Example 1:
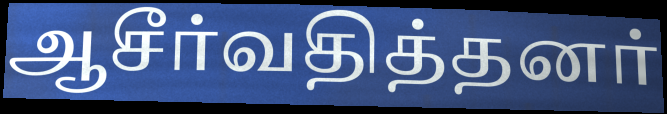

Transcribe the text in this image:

ஆசீர்வதித்தனர்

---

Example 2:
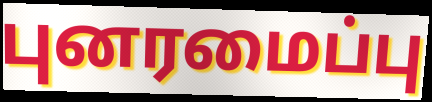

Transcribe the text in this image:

புனரமைப்பு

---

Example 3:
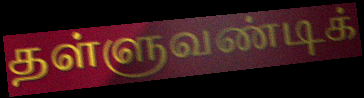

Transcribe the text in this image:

தள்ளுவண்டிக்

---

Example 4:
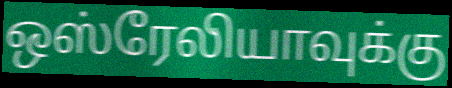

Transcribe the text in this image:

ஒஸ்ரேலியாவுக்கு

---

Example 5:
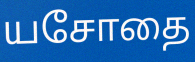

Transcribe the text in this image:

யசோதை